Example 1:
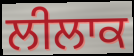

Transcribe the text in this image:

ਲੀਲਾਕ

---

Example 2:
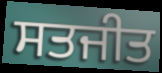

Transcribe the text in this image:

ਸਤਜੀਤ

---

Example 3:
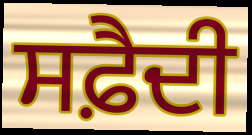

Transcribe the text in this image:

ਸਫ਼ੈਦੀ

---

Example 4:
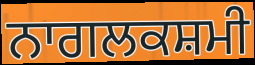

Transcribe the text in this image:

ਨਾਗਲਕਸ਼ਮੀ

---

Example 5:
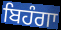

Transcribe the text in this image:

ਬਿਹੰਗਾ